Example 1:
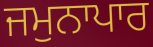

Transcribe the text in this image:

ਜਮੁਨਾਪਾਰ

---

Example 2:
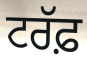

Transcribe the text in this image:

ਟਰੱਫ਼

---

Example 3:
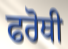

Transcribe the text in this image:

ਫਰੋਥੀ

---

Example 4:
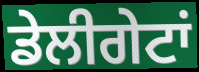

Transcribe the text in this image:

ਡੇਲੀਗੇਟਾਂ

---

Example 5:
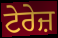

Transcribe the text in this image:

ਟੇਰੇਜ਼